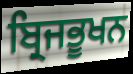
ਬ੍ਰਿਜਭੂਖਨ